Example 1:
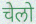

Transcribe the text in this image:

चेलो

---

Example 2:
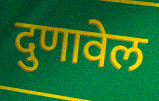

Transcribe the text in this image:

दुणावेल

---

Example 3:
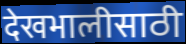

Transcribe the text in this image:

देखभालीसाठी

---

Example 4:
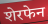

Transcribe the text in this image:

शेरफेन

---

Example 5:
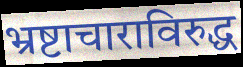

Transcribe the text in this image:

भ्रष्टाचाराविरुद्ध